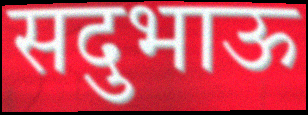
सदुभाऊ